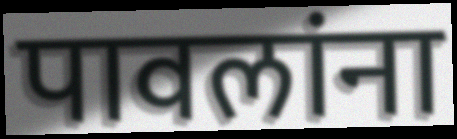
पावलांना